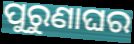
ପୁରୁଣାଘର